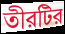
তীরটির